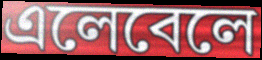
এলেবেলে